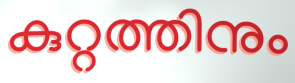
കുറ്റത്തിനും